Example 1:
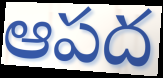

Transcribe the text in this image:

ఆపద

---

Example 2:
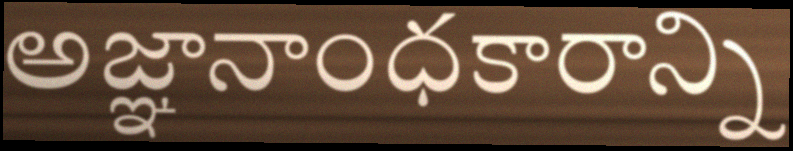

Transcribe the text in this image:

అజ్ఞానాంధకారాన్ని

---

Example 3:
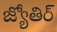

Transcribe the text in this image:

జ్యోతిర్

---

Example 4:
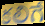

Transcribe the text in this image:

కలిగే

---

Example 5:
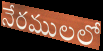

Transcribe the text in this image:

నేరములలో